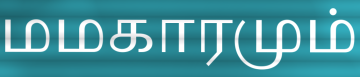
மமகாரமும்